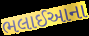
ભલાઈઆના